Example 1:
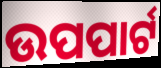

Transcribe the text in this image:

ଉପପାର୍ଟ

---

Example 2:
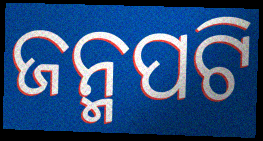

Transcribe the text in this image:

ଜନ୍ମପଟି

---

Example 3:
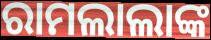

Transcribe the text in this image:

ରାମଲାଲାଙ୍କ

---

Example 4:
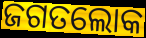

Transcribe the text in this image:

ଜଗତଲୋକ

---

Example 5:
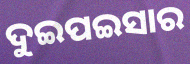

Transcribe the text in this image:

ଦୁଇପଇସାର